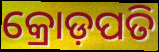
କ୍ରୋଡ଼ପତି